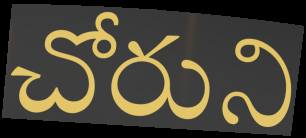
చోరుని